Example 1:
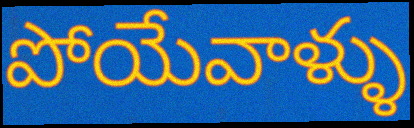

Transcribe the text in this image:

పోయేవాళ్ళు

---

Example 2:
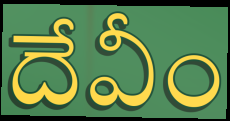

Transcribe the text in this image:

దేవీం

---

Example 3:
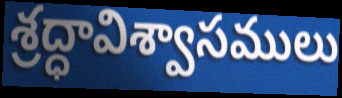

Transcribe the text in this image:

శ్రద్ధావిశ్వాసములు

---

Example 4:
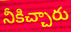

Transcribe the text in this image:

నీకిచ్చారు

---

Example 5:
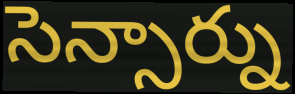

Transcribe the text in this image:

సెన్సార్ను